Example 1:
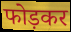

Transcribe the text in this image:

फोड़कर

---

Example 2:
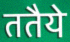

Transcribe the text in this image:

ततैये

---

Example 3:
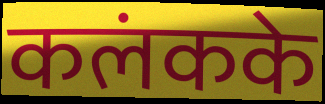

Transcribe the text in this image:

कलंकके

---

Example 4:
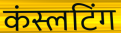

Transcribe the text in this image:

कंस्लटिंग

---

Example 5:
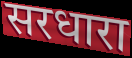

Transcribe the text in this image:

सरधारा